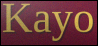
Kayo